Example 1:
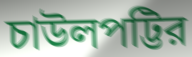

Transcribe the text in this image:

চাউলপট্টির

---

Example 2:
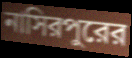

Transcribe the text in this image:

নাসিরপুরের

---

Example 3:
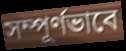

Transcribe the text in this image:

সম্পূর্ণভাবে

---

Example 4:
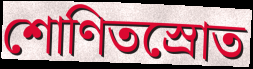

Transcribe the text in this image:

শোণিতস্রোত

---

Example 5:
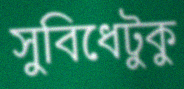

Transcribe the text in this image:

সুবিধেটুকু